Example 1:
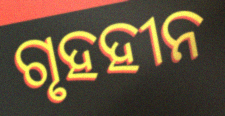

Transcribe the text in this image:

ଗୃହହୀନ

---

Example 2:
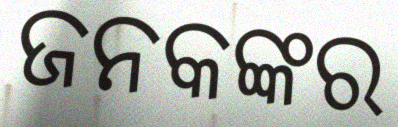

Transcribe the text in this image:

ଜନକଙ୍କର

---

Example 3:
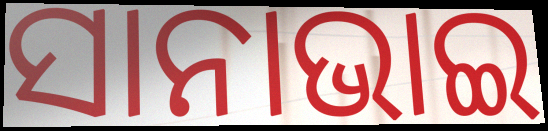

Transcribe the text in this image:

ସାନାଭାଇ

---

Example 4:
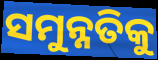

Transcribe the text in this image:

ସମୁନ୍ନତିକୁ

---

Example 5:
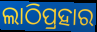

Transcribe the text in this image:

ଲାଠିପ୍ରହାର